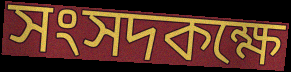
সংসদকক্ষে